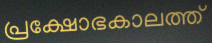
പ്രക്ഷോഭകാലത്ത്